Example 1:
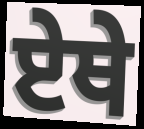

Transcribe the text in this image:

ਏਥੇ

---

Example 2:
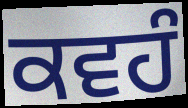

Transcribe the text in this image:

ਕਵਹੰ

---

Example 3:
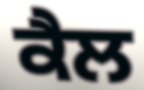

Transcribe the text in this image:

ਕੈਲ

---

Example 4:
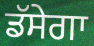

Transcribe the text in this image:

ਡੱਸੇਗਾ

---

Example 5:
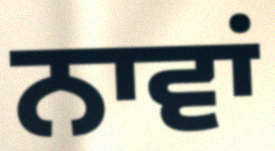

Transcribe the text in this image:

ਨਾਵਾਂ